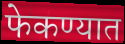
फेकण्यात